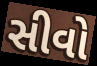
સીવો